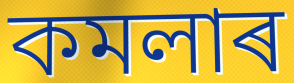
কমলাৰ